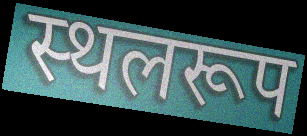
स्थलरूप